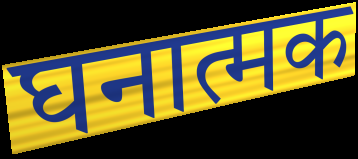
घनात्मक